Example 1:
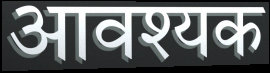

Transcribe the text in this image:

आवश्‍यक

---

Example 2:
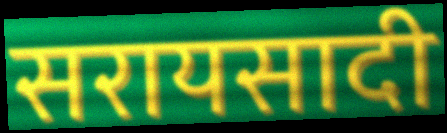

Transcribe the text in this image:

सरायसादी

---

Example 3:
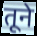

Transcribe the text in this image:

तूने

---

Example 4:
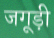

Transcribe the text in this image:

जगूड़ी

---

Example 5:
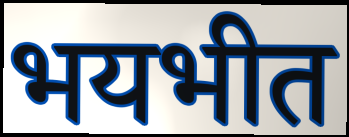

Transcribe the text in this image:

भयभीत